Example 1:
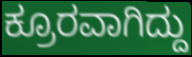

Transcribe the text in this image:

ಕ್ರೂರವಾಗಿದ್ದು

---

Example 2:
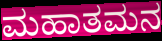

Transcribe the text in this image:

ಮಹಾತಮನ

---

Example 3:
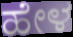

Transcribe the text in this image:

ಹೇಳ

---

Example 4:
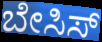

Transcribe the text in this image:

ಬೇಸಿಸ್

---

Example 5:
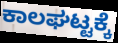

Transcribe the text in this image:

ಕಾಲಘಟ್ಟಕ್ಕೆ